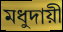
মধুদায়ী